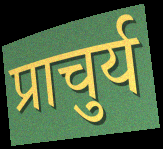
प्राचुर्य